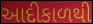
આદીકાળથી